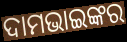
ଦାମଭାଇଙ୍କର